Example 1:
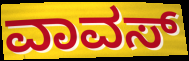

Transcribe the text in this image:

ವಾವಸ್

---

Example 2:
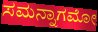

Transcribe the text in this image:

ಸಮನ್ನಾಗಮೋ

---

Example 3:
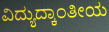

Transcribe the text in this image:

ವಿದ್ಯುದ್ಕಾಂತೀಯ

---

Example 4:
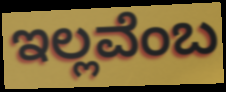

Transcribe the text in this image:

ಇಲ್ಲವೆಂಬ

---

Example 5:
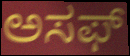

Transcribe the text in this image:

ಅಸಫ್